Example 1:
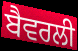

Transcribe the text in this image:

ਬੈਵਰਲੀ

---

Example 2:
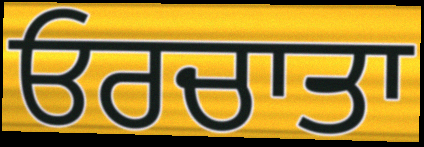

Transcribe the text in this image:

ਓਰਚਾਤਾ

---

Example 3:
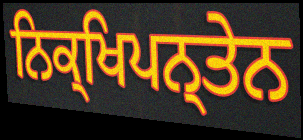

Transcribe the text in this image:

ਨਿਕ੍ਖਿਪਨ੍ਤੇਨ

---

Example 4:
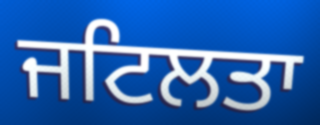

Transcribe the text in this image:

ਜਟਿਲਤਾ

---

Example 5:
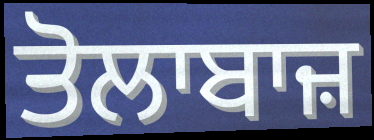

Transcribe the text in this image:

ਤੋਲਾਬਾਜ਼